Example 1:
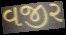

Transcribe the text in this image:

વજીર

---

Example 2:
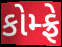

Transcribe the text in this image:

કોમ્ફ્રે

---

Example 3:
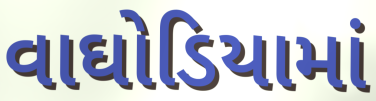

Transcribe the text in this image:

વાઘોડિયામાં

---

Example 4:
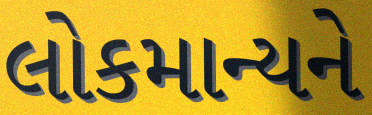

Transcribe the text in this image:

લોકમાન્યને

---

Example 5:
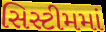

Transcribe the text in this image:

સિસ્ટીમમાં